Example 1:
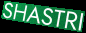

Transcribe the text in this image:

SHASTRI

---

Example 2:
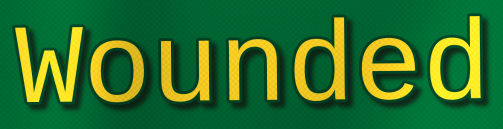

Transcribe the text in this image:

Wounded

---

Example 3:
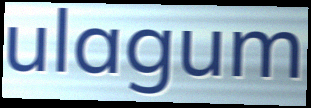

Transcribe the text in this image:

ulagum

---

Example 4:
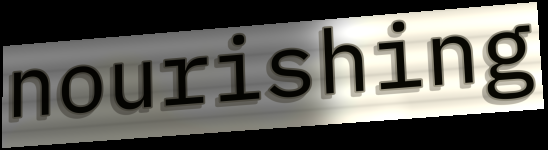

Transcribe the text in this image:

nourishing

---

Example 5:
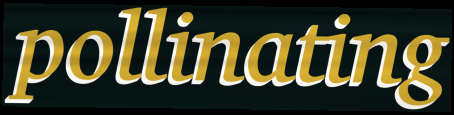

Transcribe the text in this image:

pollinating